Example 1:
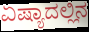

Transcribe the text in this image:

ಏಷ್ಯಾದಲ್ಲಿನ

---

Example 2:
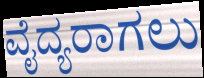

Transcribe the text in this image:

ವೈದ್ಯರಾಗಲು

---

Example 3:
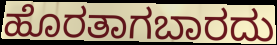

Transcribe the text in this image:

ಹೊರತಾಗಬಾರದು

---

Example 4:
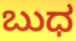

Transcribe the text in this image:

ಬುಧ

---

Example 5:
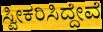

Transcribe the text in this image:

ಸ್ವೀಕರಿಸಿದ್ದೇವೆ